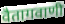
वैतागवाणी